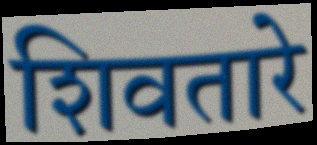
शिवतारे